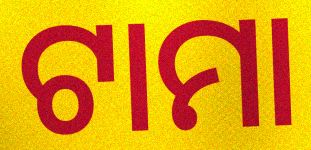
ଟାମା